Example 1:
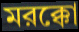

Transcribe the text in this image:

মরক্কো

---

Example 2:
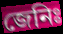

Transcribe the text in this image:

জেনিঃ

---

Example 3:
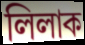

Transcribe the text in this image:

লিলাক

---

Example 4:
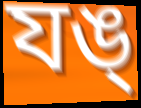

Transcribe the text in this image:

যঙ্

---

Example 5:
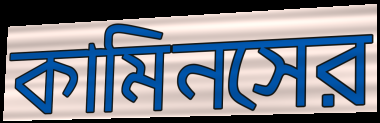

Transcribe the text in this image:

কামিনসের